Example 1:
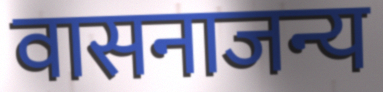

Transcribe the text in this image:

वासनाजन्य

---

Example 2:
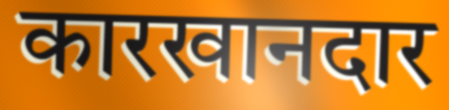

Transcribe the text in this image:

कारखानदार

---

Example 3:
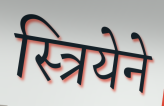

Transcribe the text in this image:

स्त्रियेने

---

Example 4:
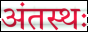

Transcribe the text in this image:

अंतस्थः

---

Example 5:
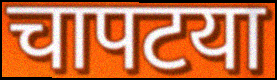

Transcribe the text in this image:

चापटया